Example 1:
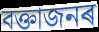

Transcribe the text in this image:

বক্তাজনৰ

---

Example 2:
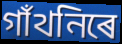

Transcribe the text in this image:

গাঁথনিৰে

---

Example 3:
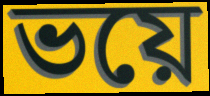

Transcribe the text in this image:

ভয়ে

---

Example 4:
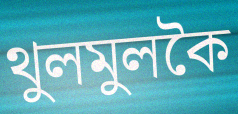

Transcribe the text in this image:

থুলমুলকৈ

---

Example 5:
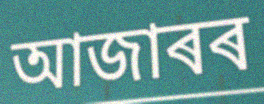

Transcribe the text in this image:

আজাৰৰ